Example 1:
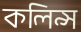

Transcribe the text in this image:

কলিন্স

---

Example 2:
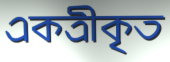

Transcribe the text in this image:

একত্রীকৃত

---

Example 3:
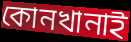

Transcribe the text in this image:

কোনখানাই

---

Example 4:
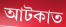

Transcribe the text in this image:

আটকাত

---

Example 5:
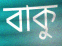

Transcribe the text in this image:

বাকু